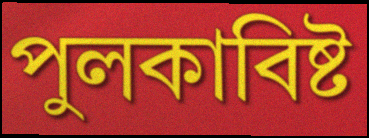
পুলকাবিষ্ট